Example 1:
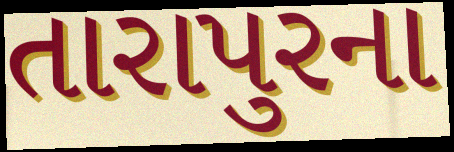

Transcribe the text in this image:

તારાપુરના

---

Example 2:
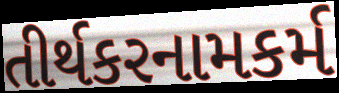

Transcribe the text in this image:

તીર્થકરનામકર્મ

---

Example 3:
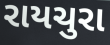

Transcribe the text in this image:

રાયચુરા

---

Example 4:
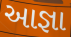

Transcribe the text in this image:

આજ્ઞા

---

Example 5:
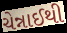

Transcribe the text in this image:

ચેન્નાઈથી